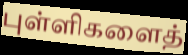
புள்ளிகளைத்